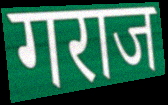
गराज